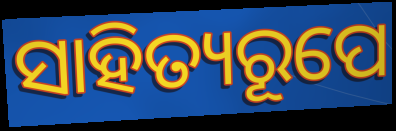
ସାହିତ୍ୟରୂପେ